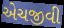
એચજીવી